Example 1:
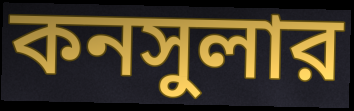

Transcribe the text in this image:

কনসুলার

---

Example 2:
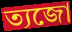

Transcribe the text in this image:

ত্যজো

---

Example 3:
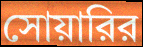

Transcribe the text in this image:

সোয়ারির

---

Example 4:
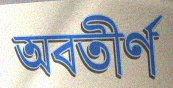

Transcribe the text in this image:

অবতীর্ণ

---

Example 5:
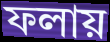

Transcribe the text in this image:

ফলায়